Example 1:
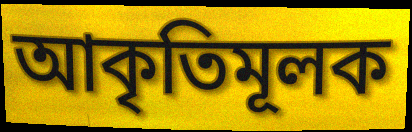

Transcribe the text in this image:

আকৃতিমূলক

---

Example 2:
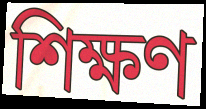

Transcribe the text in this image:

শিক্ষণ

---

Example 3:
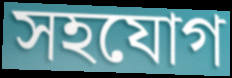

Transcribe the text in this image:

সহযোগ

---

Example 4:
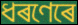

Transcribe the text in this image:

ধৰণেৰে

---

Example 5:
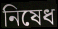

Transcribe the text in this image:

নিষেধ